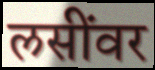
लसींवर